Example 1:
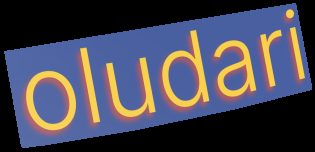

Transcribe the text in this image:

oludari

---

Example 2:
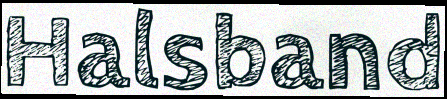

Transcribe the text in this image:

Halsband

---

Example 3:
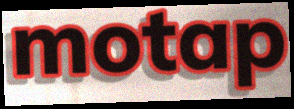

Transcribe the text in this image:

motap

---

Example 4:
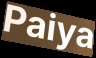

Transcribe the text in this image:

Paiya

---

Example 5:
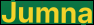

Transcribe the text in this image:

Jumna